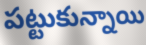
పట్టుకున్నాయి